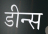
डीन्स